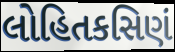
લોહિતકસિણં